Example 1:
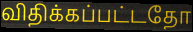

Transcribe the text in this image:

விதிக்கப்பட்டதோ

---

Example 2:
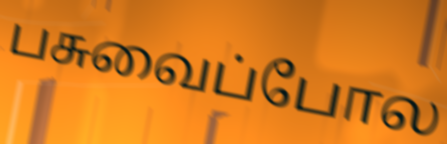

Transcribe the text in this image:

பசுவைப்போல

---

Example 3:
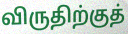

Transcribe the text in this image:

விருதிற்குத்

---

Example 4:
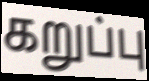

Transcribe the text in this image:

கறுப்பு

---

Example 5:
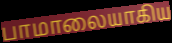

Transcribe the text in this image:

பாமாலையாகிய